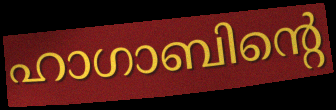
ഹാഗാബിന്റെ